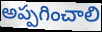
అప్పగించాలి